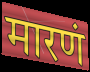
मारणं